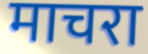
माचरा